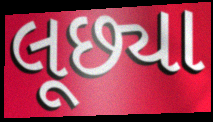
લૂછ્યા